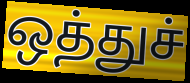
ஒத்துச்